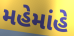
મહેમાંહે